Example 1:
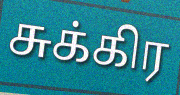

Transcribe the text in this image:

சுக்கிர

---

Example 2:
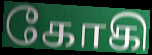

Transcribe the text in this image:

கோகி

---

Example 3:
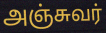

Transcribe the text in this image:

அஞ்சுவர்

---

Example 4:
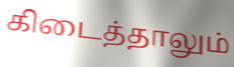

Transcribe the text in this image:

கிடைத்தாலும்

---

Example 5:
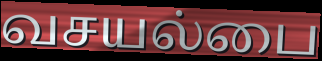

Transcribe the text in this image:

வசயல்பை